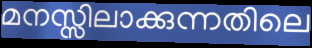
മനസ്സിലാക്കുന്നതിലെ